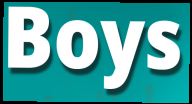
Boys